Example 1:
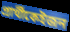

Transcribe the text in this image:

প্ৰাৰ্থীকেইজন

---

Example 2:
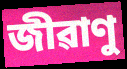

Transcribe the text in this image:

জীৱাণু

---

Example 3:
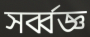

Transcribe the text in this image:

সৰ্ব্বজ্ঞ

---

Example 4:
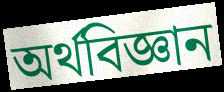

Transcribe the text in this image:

অৰ্থবিজ্ঞান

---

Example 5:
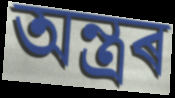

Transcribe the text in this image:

অন্ত্ৰৰ